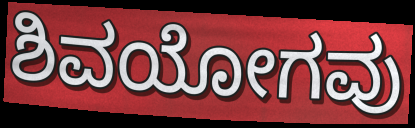
ಶಿವಯೋಗವು